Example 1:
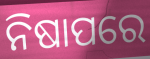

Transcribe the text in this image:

ନିଷାପରେ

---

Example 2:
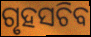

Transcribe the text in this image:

ଗୃହସଚିବ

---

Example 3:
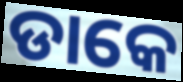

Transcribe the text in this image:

ଡାକେ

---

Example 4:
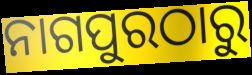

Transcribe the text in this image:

ନାଗପୁରଠାରୁ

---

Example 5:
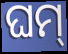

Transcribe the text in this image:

ଘମ୍